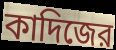
কাদিজের